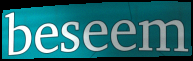
beseem